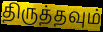
திருத்தவும்